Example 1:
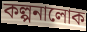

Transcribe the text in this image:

কল্পনালোক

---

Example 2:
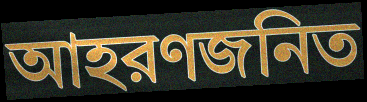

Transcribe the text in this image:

আহরণজনিত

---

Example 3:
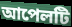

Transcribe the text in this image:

আপেলটি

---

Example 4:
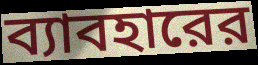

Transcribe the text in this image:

ব্যাবহারের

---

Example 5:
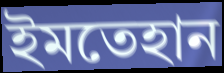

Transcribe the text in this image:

ইমতেহান